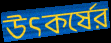
উৎকর্ষের